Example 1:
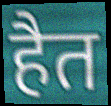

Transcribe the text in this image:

हैत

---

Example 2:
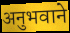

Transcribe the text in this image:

अनुभवाने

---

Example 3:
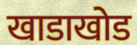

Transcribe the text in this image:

खाडाखोड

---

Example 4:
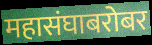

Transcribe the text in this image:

महासंघाबरोबर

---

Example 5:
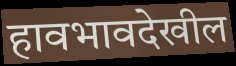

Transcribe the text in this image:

हावभावदेखील